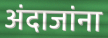
अंदाजांना